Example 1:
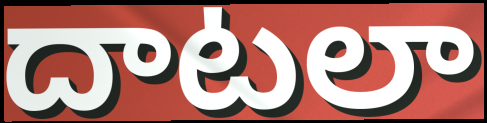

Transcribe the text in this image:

దాటలా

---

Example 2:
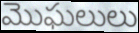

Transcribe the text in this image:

మొఘలులు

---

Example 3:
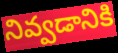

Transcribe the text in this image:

నివ్వడానికి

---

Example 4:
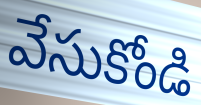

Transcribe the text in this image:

వేసుకోండి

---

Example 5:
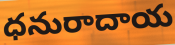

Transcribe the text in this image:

ధనురాదాయ